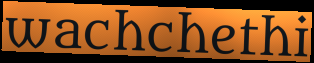
wachchethi